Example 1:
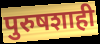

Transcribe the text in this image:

पुरुषशाही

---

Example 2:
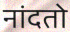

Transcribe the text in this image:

नांदतो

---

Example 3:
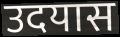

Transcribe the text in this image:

उदयास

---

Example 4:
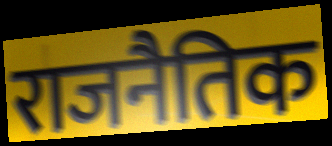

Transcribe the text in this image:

राजनैतिक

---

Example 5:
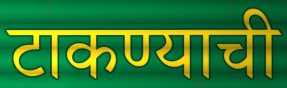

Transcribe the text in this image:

टाकण्याची